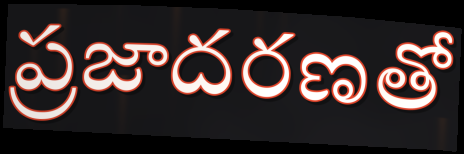
ప్రజాదరణతో